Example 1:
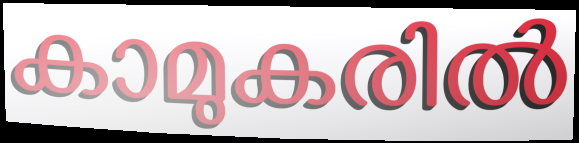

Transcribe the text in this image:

കാമുകരിൽ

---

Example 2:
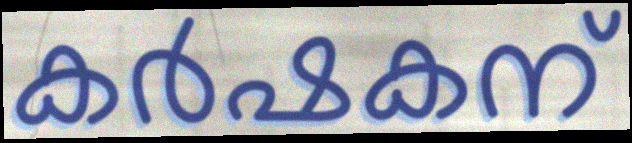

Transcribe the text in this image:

കർഷകന്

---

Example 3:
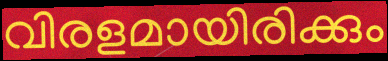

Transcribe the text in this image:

വിരളമായിരിക്കും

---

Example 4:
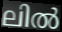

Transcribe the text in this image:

ലിൽ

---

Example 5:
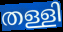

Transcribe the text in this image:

തള്ളി